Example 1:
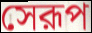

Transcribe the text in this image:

সেরূপ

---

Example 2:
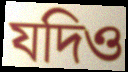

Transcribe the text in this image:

যদিও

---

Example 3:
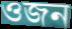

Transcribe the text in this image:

ওজন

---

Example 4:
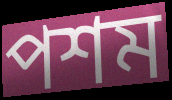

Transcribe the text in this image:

পশম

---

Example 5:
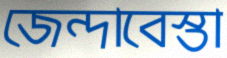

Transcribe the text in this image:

জেন্দাবেস্তা